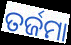
ତର୍ଜମା